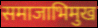
समाजाभिमुख